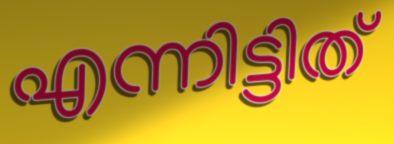
എന്നിട്ടിത്